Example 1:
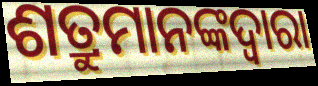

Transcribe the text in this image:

ଶତ୍ରୁମାନଙ୍କଦ୍ଵାରା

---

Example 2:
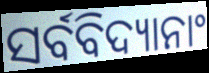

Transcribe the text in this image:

ସର୍ବବିଦ୍ୟାନାଂ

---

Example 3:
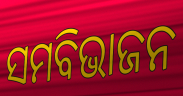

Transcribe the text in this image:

ସମବିଭାଜନ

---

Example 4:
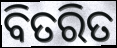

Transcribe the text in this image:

ବିତରିତ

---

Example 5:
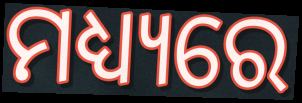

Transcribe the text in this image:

ମଧ୍ୟ୍ୟରେ